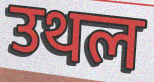
उथल